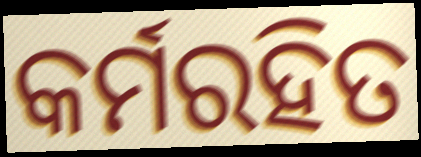
କର୍ମରହିତ